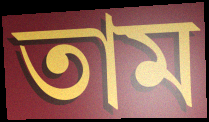
তাম